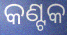
କଣ୍ଟକ